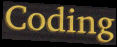
Coding